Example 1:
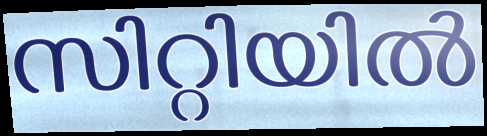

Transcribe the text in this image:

സിറ്റിയിൽ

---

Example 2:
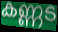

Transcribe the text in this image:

കണ്ണട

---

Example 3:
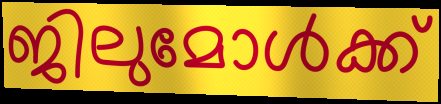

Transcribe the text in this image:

ജിലുമോൾക്ക്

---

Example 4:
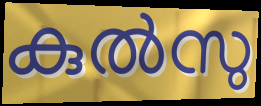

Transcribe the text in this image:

കുൽസു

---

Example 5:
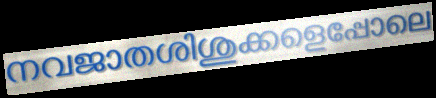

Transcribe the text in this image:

നവജാതശിശുക്കളെപ്പോലെ